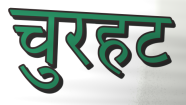
चुरहट